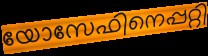
യോസേഫിനെപ്പറ്റി